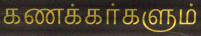
கணக்கர்களும்